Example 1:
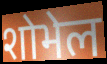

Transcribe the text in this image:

शोभेल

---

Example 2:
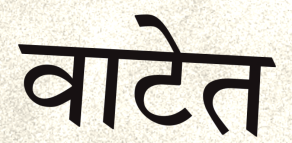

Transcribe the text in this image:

वाटेत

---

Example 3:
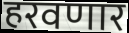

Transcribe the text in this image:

हरवणार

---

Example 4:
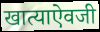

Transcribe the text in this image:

खात्याऐवजी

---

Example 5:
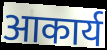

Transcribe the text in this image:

आकार्य